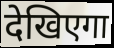
देखिएगा